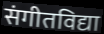
संगीतविद्या